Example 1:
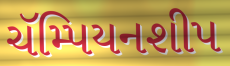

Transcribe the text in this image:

ચૅમ્પિયનશીપ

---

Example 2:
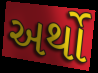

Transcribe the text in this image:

અર્થો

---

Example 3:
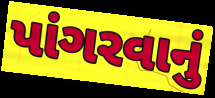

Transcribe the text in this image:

પાંગરવાનું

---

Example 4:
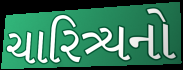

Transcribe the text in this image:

ચારિત્ર્યનો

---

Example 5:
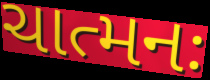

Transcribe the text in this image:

ચાત્મનઃ